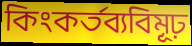
কিংকর্তব্যবিমূঢ়